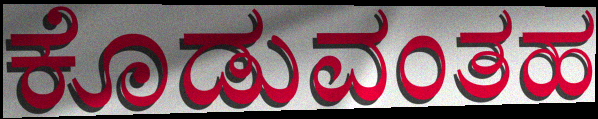
ಕೊಡುವಂತಹ